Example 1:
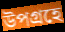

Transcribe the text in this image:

উপগ্রহে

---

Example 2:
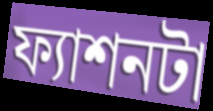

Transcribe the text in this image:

ফ্যাশনটা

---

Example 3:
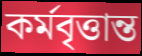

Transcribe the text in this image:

কর্মবৃত্তান্ত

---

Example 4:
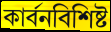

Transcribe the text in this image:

কার্বনবিশিষ্ট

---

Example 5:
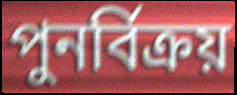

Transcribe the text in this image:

পুনর্বিক্রয়